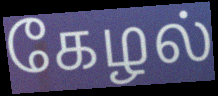
கேழல்